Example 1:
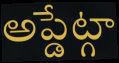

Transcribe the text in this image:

అప్డేట్గా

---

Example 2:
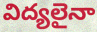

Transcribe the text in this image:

విద్యలైనా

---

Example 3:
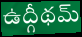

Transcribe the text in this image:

ఉద్గీథమ్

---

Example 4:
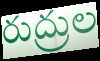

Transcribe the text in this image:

రుద్రుల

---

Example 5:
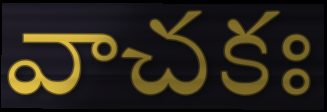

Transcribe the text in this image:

వాచకః